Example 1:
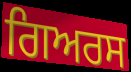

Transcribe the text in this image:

ਗਿਅਰਸ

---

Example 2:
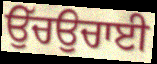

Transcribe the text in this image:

ਉੱਚਉਚਾਈ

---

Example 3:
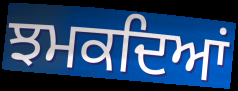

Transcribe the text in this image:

ਝਮਕਦਿਆਂ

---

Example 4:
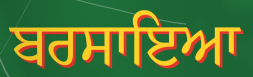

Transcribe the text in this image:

ਬਰਸਾਇਆ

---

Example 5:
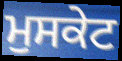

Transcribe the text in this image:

ਮੁਸਕੇਟ